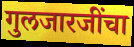
गुलजारजींचा